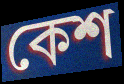
কেশ